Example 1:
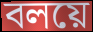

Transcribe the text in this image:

বলয়ে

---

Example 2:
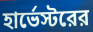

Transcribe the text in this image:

হার্ভেস্টরের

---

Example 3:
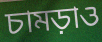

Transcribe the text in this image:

চামড়াও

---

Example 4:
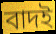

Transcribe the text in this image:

বাদই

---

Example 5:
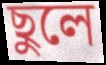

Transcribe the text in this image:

ছুলে